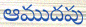
ఆముదపు